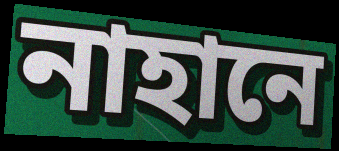
নাহানে